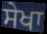
ਸੇਖਾ